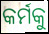
କର୍ମକୁ